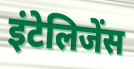
इंटेलिजेंस